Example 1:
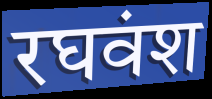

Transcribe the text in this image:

रघवंश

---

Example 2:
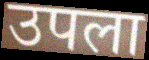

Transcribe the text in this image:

उपला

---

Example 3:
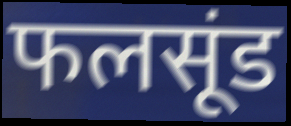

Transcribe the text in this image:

फलसूंड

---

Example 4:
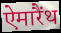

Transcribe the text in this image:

ऐमारैंथ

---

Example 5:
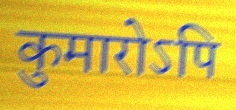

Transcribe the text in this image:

कुमारोऽपि